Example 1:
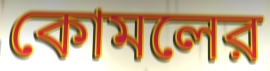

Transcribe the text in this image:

কোমলের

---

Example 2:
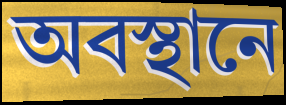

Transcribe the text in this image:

অবস্থানে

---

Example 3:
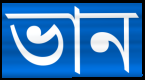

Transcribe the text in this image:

ভান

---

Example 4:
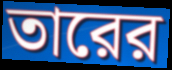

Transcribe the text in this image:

তারের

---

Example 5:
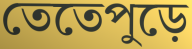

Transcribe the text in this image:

তেতেপুড়ে